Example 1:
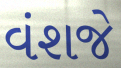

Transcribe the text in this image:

વંશજે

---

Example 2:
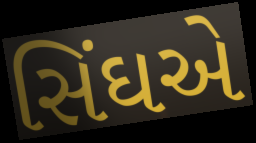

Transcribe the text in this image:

સિંઘએ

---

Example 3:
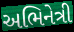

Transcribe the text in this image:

અભિનેત્રી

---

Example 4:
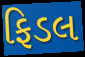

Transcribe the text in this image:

ફિડલ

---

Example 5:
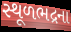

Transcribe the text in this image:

સ્થૂળભદ્રના